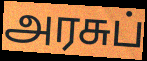
அரசுப்